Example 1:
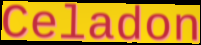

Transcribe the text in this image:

Celadon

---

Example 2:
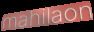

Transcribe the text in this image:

mahilaon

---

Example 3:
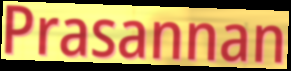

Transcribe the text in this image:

Prasannan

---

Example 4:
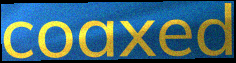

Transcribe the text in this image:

coaxed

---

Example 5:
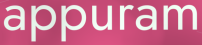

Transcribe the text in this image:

appuram